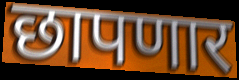
छापणार